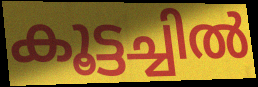
കൂട്ടച്ചിൽ